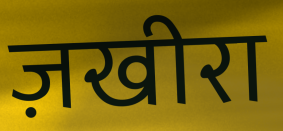
ज़खीरा